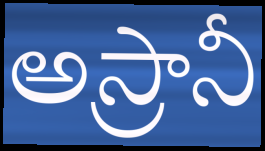
అస్రానీ